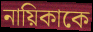
নায়িকাকে